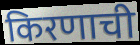
किरणाची